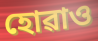
হোৱাও